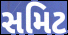
સમિટ